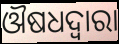
ଔଷଧଦ୍ବାରା